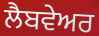
ਲੈਬਵੇਅਰ